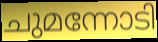
ചുമന്നോടി